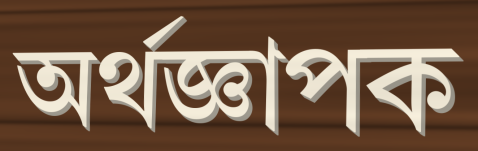
অর্থজ্ঞাপক